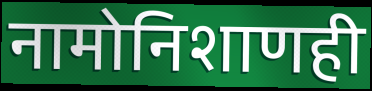
नामोनिशाणही